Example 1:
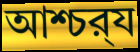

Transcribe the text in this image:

আশ্চর্‍য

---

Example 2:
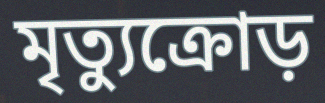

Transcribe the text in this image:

মৃত্যুক্রোড়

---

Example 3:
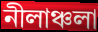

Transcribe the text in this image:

নীলাঞ্চলা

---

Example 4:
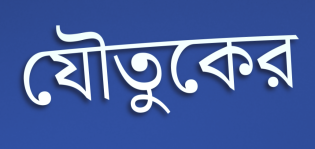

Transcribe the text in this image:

যৌতুকের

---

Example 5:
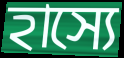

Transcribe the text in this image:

হাস্যে